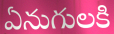
ఏనుగులకి